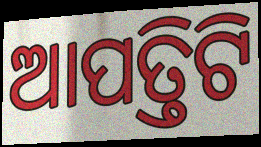
ଆପତ୍ତିଟି